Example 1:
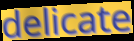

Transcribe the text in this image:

delicate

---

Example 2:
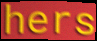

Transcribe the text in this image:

hers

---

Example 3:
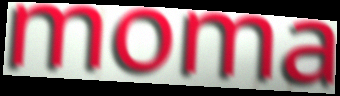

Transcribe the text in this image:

moma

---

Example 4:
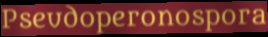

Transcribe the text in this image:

Pseudoperonospora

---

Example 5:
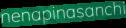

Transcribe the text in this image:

nenapinasanchi